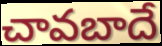
చావబాదే